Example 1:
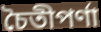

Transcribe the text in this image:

চৈতীপর্ণা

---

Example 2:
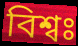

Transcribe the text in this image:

বিশ্বঃ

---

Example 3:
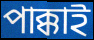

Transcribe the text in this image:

পাক্কাই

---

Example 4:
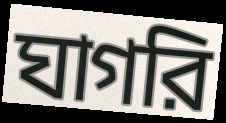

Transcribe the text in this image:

ঘাগরি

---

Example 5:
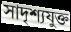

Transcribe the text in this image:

সাদৃশ্যযুক্ত